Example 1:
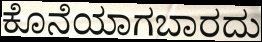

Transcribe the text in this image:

ಕೊನೆಯಾಗಬಾರದು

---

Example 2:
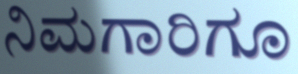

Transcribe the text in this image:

ನಿಮಗಾರಿಗೂ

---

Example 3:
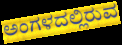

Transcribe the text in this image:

ಅಂಗಳದಲ್ಲಿರುವ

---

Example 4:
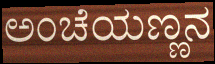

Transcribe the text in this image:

ಅಂಚೆಯಣ್ಣನ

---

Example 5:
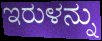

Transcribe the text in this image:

ಇರುಳನ್ನು